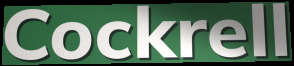
Cockrell